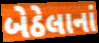
બેઠેલાનાં